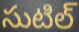
సుటిల్